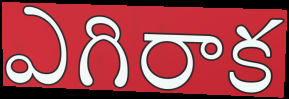
ఎగిరాక